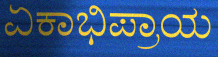
ಏಕಾಭಿಪ್ರಾಯ